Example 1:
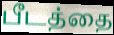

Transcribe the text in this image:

பீடத்தை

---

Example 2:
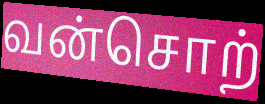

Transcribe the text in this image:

வன்சொற்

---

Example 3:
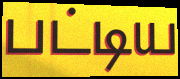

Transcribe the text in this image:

பட்டிய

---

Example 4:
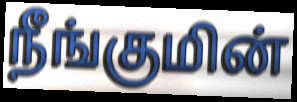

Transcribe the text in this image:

நீங்குமின்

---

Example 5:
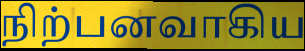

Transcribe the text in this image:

நிற்பனவாகிய